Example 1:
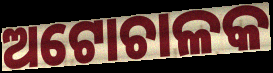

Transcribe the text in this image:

ଅଟୋଚାଳକ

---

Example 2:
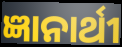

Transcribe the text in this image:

ଜ୍ଞାନାର୍ଥୀ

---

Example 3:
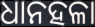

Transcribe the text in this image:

ଧାନହଳା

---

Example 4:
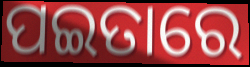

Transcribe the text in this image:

ପଇତାରେ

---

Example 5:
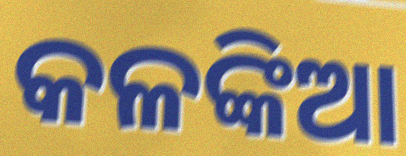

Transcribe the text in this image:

କଳଙ୍କିଆ